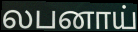
லபனாய்